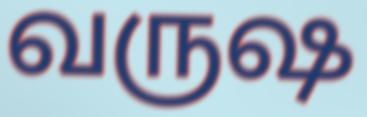
வருஷ